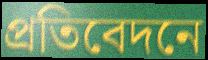
প্ৰতিবেদনে